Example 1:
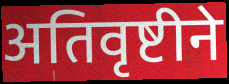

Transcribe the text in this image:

अतिवृष्टीने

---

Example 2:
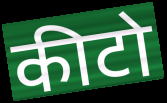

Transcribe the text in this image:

कीटो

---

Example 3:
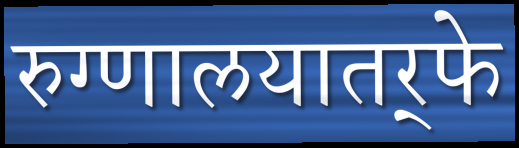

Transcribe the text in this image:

रुग्णालयातर्फे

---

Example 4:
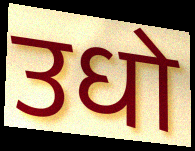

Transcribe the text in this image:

उधो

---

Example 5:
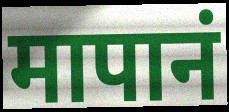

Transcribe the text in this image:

मापानं